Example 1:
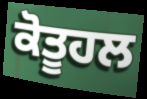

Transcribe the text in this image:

ਕੋਤੂਹਲ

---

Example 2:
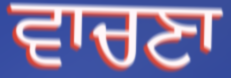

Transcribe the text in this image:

ਵਾਚਣਾ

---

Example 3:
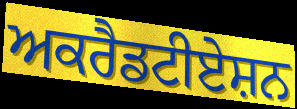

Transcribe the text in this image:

ਅਕਰੈਡਟੀਏਸ਼ਨ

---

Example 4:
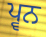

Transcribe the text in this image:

ਪ੍ਵਨ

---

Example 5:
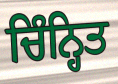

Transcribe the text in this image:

ਚਿੰਨ੍ਹਿਤ